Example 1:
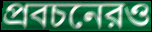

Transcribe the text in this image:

প্রবচনেরও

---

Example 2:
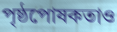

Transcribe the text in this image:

পৃষ্ঠপোষকতাও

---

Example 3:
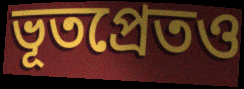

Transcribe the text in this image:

ভূতপ্রেতও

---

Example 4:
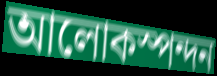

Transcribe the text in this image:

আলোকস্পন্দন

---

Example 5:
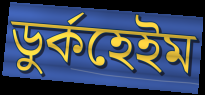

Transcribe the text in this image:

ডুর্কহেইম